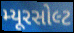
મ્યૂરસોલ્ટ